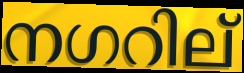
നഗറില്